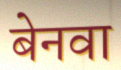
बेनवा